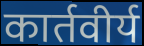
कार्तवीर्य